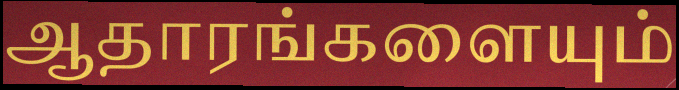
ஆதாரங்களையும்